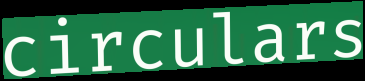
circulars